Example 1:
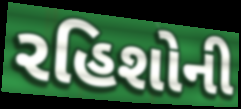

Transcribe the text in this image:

રહિશોની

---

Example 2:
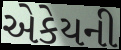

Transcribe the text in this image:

એકેયની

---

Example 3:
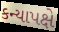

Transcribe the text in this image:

કન્યાપક્ષે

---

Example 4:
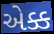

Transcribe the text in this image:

એક્ક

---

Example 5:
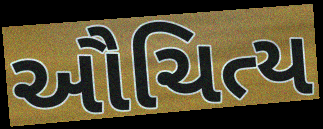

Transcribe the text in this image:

ઔચિત્ય